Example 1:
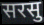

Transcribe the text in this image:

सरसु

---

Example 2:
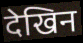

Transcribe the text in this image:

देखिन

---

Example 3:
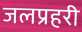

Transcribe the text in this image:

जलप्रहरी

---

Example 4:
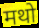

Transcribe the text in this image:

मथो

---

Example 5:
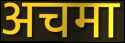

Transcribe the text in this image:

अचमा